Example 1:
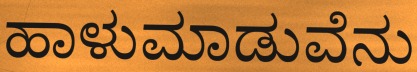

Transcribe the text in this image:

ಹಾಳುಮಾಡುವೆನು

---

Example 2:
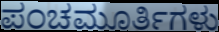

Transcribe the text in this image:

ಪಂಚಮೂರ್ತಿಗಳು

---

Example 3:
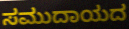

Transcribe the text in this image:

ಸಮುದಾಯದ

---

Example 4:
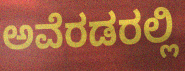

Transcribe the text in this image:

ಅವೆರಡರಲ್ಲಿ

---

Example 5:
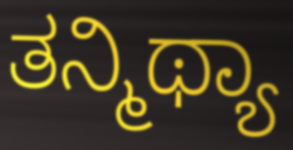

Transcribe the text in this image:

ತನ್ಮಿಥ್ಯಾ